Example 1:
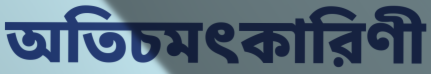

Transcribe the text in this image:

অতিচমৎকারিণী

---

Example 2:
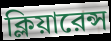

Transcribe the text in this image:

ক্লিয়ারেন্স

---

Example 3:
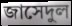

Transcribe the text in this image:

জাসেদুল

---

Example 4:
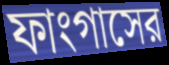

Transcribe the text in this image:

ফাংগাসের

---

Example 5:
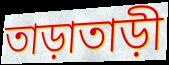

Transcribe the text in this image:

তাড়াতাড়ী